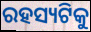
ରହସ୍ୟଟିକୁ